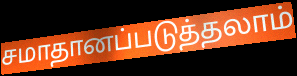
சமாதானப்படுத்தலாம்